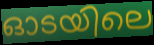
ഓടയിലെ